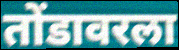
तोंडावरला